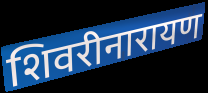
शिवरीनारायण